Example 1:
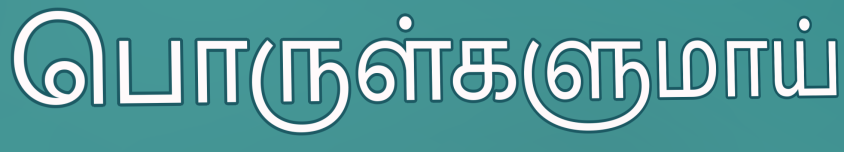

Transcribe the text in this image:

பொருள்களுமாய்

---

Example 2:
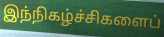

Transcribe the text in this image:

இந்நிகழ்ச்சிகளைப்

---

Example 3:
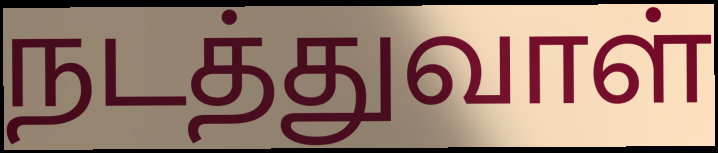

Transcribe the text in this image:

நடத்துவாள்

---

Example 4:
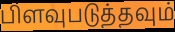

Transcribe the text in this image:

பிளவுபடுத்தவும்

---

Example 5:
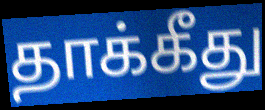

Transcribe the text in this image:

தாக்கீது